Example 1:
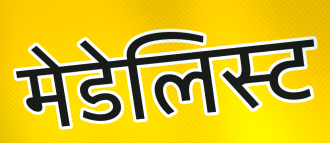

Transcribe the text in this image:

मेडेलिस्ट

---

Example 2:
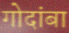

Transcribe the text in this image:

गोदांबा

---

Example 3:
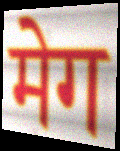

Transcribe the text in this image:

मेग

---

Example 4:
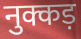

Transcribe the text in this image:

नुक्कड़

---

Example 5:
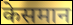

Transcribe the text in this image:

केसमान